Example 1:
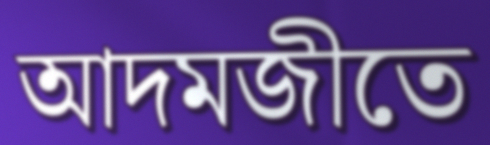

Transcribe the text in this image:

আদমজীতে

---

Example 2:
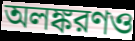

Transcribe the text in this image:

অলঙ্করণও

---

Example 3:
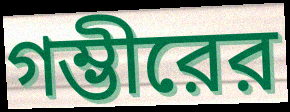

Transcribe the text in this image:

গম্ভীরের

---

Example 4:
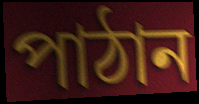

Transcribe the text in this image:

পাঠান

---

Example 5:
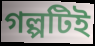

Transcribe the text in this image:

গল্পটিই